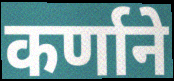
कर्णाने